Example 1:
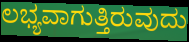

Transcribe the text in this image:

ಲಭ್ಯವಾಗುತ್ತಿರುವುದು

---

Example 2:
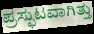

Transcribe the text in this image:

ಪ್ರಸ್ಫುಟವಾಗಿತ್ತು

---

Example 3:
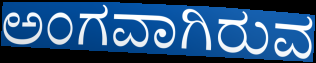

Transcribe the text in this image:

ಅಂಗವಾಗಿರುವ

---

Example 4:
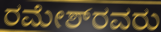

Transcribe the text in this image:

ರಮೇಶ್‌ರವರು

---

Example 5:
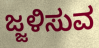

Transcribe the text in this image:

ಜ್ಜಳಿಸುವ